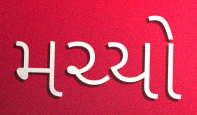
મચ્યો